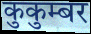
कुकुम्बर